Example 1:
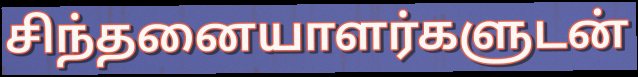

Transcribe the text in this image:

சிந்தனையாளர்களுடன்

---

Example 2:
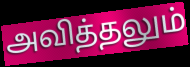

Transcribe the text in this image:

அவித்தலும்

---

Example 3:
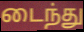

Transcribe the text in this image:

டைந்து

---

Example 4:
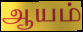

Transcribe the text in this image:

ஆயம்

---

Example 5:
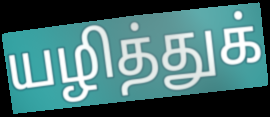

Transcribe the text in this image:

யழித்துக்